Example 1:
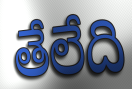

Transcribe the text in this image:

తేలేది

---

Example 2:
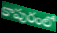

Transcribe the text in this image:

కాపురంలో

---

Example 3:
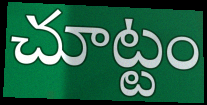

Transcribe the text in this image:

చూట్టం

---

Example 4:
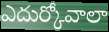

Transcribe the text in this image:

ఎదుర్కోవాలా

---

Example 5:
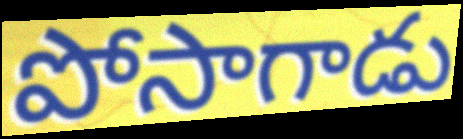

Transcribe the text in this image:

పోసాగాడు